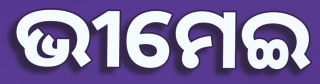
ଭୀମେଇ